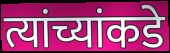
त्यांच्यांकडे